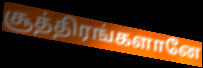
சூத்திரங்களானே